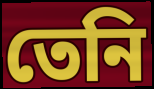
তেনি